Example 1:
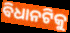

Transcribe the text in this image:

ବିଧାନଟିକୁ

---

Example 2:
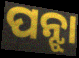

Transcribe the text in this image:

ପନ୍ଝା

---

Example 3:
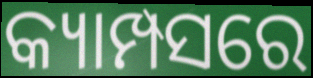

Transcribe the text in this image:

କ୍ୟାମ୍ପସରେ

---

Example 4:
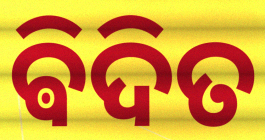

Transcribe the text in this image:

ଵିଦିତ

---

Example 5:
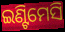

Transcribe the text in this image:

ଇଣ୍ଟିମେସି